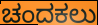
ಚಂದಕಲು